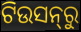
ଟିଉସନ୍‌ରୁ